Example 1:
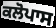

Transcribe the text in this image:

ਕਲੋਪਾਸ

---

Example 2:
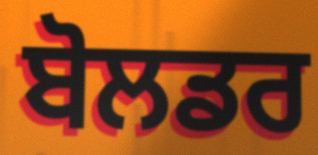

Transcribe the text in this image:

ਬੋਲਡਰ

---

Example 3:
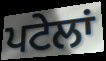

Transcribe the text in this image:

ਪਟੇਲਾਂ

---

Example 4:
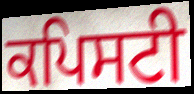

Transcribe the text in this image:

ਕਪਿਸਟੀ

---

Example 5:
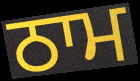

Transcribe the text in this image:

ਠਾਮ